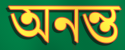
অনন্ত